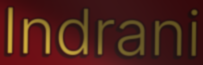
Indrani